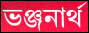
ভঞ্জনার্থ